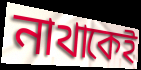
নাথাকেই